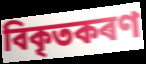
বিকৃতকৰণ